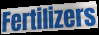
Fertilizers